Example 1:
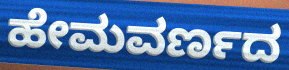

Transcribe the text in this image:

ಹೇಮವರ್ಣದ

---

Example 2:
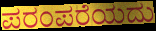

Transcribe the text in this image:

ಪರಂಪರೆಯದು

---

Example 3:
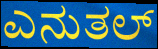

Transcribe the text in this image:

ಎನುತಲ್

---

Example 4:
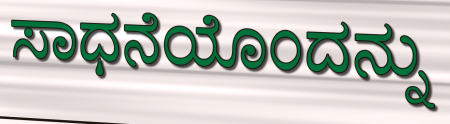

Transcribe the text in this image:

ಸಾಧನೆಯೊಂದನ್ನು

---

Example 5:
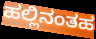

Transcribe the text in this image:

ಹಲ್ಲಿನಂತಹ